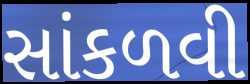
સાંકળવી